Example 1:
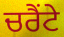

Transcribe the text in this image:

ਚਰੈਂਟੇ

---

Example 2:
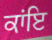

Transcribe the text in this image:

ਕਾਂਇ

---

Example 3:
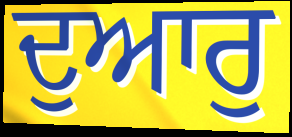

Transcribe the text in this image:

ਦੁਆਰੁ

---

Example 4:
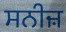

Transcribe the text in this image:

ਸਨੀਜ਼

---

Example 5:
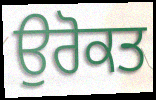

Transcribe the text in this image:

ਉਰੋਕਤ